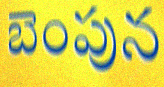
బెంపున